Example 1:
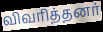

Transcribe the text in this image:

விவரித்தனர்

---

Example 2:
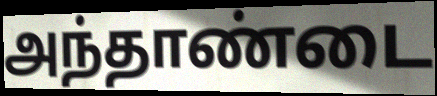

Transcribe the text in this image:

அந்தாண்டை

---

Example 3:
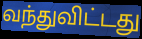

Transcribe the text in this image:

வந்துவிட்டது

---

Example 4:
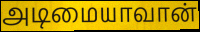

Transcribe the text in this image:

அடிமையாவான்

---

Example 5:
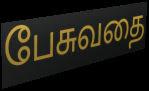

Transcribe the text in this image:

பேசுவதை